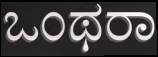
ಒಂಥರಾ